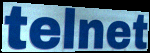
telnet